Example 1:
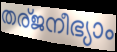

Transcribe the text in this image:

തര്ജനീഭ്യാം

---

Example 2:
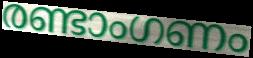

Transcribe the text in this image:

രണ്ടാംഗണം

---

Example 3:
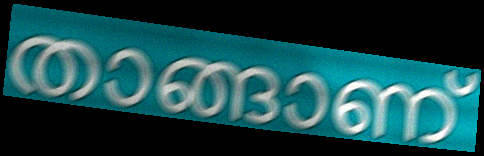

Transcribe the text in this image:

താങ്ങാണ്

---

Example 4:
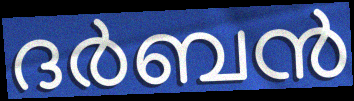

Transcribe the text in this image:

ദർബൻ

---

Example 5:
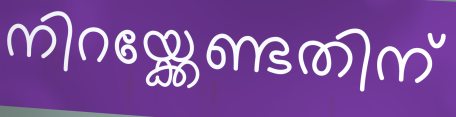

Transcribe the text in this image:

നിറയ്ക്കേണ്ടതിന്